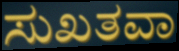
ಸುಖತವಾ